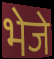
भेजे